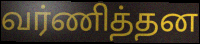
வர்ணித்தன